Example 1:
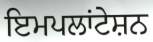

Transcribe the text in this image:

ਇਮਪਲਾਂਟੇਸ਼ਨ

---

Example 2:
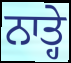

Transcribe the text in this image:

ਨਾਤ੍ਹੇ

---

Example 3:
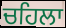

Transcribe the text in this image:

ਚਹਿਲਾ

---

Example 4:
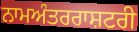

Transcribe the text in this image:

ਨਾਮਅੰਤਰਰਾਸ਼ਟਰੀ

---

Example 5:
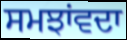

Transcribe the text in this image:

ਸਮਝਾਂਵਦਾ